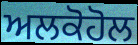
ਅਲਕੋਹੋਲ